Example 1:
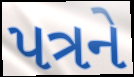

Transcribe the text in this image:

પત્રને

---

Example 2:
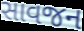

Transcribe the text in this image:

સાવજન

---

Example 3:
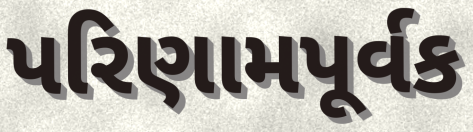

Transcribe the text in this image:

પરિણામપૂર્વક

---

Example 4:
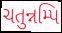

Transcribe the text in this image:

ચતુન્નમ્પિ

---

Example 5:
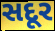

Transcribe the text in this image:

સદૂર